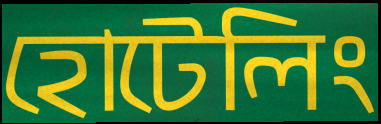
হোটেলিং